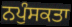
ਨਪੁੰਸਕਤਾ